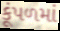
કૂંપળમાં